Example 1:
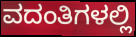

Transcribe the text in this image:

ವದಂತಿಗಳಲ್ಲಿ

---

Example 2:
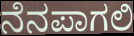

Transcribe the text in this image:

ನೆನಪಾಗಲಿ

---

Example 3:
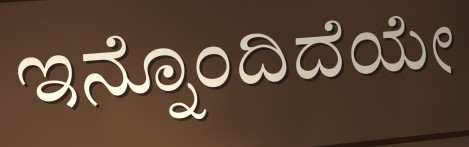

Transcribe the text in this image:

ಇನ್ನೊಂದಿದೆಯೇ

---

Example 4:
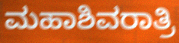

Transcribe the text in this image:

ಮಹಾಶಿವರಾತ್ರಿ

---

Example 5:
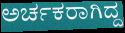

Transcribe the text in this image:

ಅರ್ಚಕರಾಗಿದ್ದ